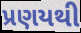
પ્રણયથી